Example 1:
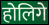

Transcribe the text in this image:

होलिगे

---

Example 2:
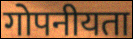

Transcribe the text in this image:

गोपनीयता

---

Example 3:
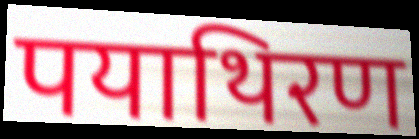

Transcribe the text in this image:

पयाथिरण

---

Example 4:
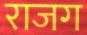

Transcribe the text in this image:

राजग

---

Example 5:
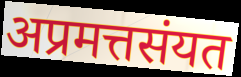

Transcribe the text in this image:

अप्रमत्तसंयत